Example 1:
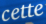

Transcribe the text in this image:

cette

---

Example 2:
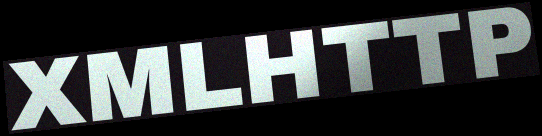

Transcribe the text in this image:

XMLHTTP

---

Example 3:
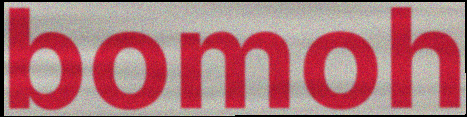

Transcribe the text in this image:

bomoh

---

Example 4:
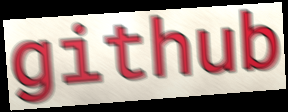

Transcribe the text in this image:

github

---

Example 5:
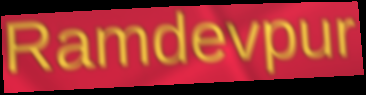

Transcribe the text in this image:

Ramdevpur